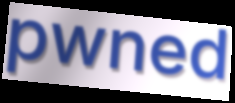
pwned